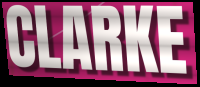
CLARKE